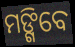
ମଙ୍ଗିବେ